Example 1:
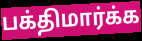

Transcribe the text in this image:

பக்திமார்க்க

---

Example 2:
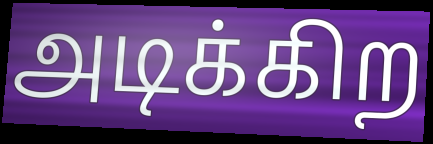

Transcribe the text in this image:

அடிக்கிற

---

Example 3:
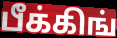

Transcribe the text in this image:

பீக்கிங்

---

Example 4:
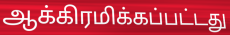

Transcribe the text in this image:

ஆக்கிரமிக்கப்பட்டது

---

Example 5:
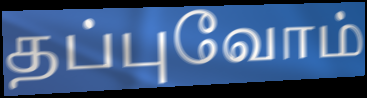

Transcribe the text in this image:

தப்புவோம்